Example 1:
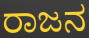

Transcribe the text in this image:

ರಾಜನ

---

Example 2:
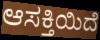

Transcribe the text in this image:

ಆಸಕ್ತಿಯಿದೆ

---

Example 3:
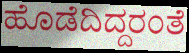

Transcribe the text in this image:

ಹೊಡೆದಿದ್ದರಂತೆ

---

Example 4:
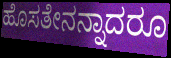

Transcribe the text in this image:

ಹೊಸತೇನನ್ನಾದರೂ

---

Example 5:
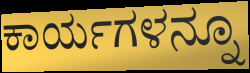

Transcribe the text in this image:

ಕಾರ್ಯಗಳನ್ನೂ